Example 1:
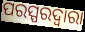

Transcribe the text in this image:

ପରସ୍ପରଦ୍ୱାରା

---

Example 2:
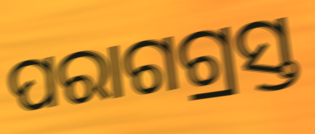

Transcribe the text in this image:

ପରାଗଗ୍ରସ୍ତ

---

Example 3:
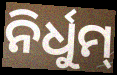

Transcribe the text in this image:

ନିର୍ଧୁମ୍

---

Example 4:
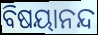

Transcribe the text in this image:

ବିଷୟାନନ୍ଦ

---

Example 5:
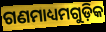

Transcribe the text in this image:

ଗଣମାଧ୍ୟମଗୁଡ଼ିକ